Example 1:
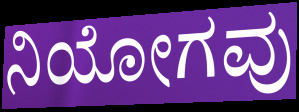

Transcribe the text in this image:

ನಿಯೋಗವು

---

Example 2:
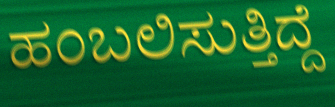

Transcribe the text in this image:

ಹಂಬಲಿಸುತ್ತಿದ್ದೆ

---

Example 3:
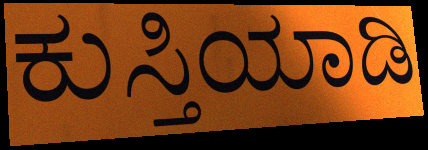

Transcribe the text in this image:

ಕುಸ್ತಿಯಾಡಿ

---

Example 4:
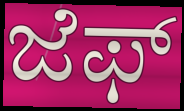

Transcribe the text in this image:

ಜೆಫ್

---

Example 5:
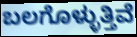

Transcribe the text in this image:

ಬಲಗೊಳ್ಳುತ್ತಿವೆ